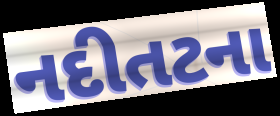
નદીતટના